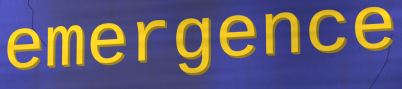
emergence